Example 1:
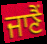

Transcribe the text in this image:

ਜਾਣੈਂ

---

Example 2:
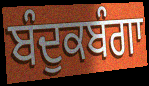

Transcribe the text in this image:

ਬੰਦੁਕਬੰਗਾ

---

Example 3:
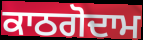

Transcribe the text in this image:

ਕਾਠਗੋਦਾਮ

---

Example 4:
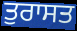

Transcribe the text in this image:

ਤੁਰਾਸਤ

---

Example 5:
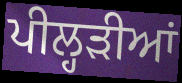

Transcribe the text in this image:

ਪੀਲ੍ਹੜੀਆਂ